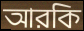
আরকি